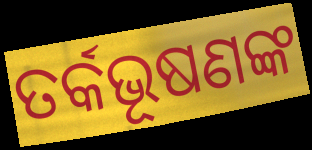
ତର୍କଭୂଷଣଙ୍କ